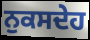
ਨੁਕਸਦੇਹ